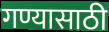
गण्यासाठी